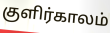
குளிர்காலம்